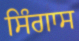
ਸਿੰਗਾਸ